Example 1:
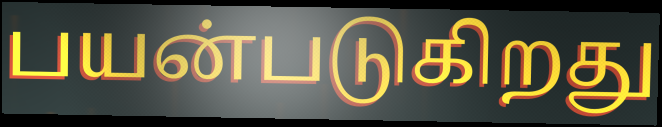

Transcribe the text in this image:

பயன்படுகிறது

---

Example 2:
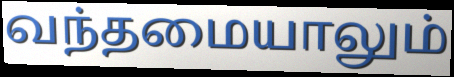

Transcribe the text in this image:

வந்தமையாலும்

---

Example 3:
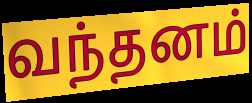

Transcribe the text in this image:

வந்தனம்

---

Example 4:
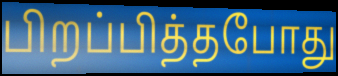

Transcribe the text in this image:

பிறப்பித்தபோது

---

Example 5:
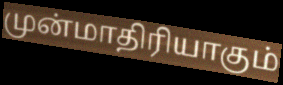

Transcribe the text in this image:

முன்மாதிரியாகும்